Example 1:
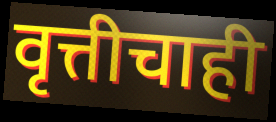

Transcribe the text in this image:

वृत्तीचाही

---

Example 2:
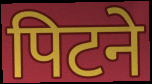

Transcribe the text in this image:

पिटने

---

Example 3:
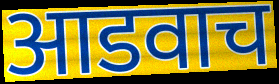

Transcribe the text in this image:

आडवाच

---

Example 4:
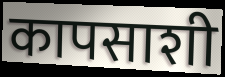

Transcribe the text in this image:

कापसाशी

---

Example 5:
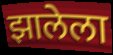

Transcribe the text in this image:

झालेला